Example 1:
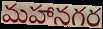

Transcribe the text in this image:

మహానగర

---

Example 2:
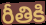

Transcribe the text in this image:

రీతికి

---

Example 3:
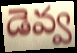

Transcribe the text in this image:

డెవ్వ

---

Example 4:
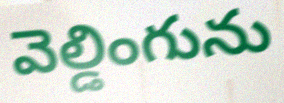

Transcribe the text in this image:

వెల్డింగును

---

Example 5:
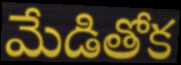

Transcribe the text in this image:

మేడితోక